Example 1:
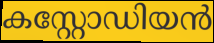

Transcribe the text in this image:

കസ്റ്റോഡിയൻ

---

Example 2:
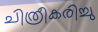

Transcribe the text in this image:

ചിത്രീകരിച്ചു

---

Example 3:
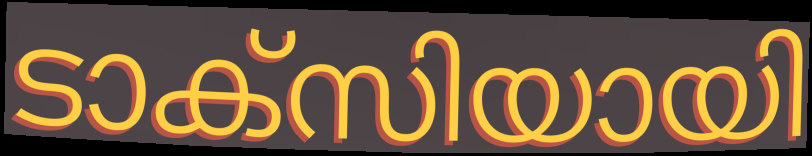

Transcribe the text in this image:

ടാക്സിയായി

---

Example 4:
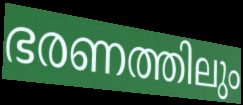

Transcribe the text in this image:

ഭരണത്തിലും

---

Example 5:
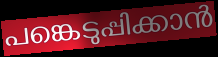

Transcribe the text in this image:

പങ്കെടുപ്പിക്കാൻ